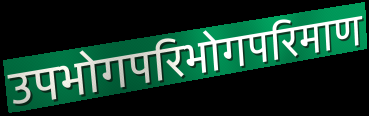
उपभोगपरिभोगपरिमाण